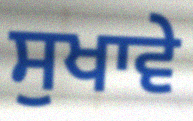
ਸੁਖਾਵੇ